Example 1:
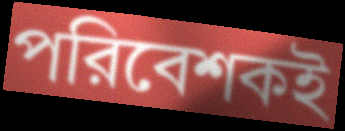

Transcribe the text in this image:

পরিবেশকই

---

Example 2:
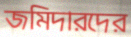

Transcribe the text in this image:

জমিদারদের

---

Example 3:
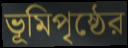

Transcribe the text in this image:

ভূমিপৃষ্ঠের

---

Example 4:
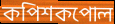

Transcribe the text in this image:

কপিশকপোল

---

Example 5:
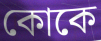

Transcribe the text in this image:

কোকে